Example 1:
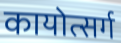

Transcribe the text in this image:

कायोत्सर्ग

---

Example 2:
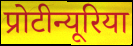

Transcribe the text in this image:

प्रोटीन्यूरिया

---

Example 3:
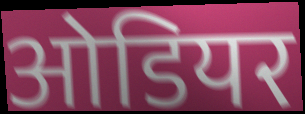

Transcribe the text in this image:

ओडियर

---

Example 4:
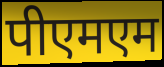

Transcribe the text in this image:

पीएमएम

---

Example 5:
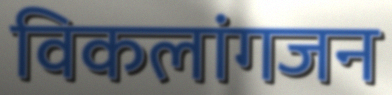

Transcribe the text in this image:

विकलांगजन